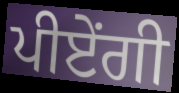
ਪੀਏਂਗੀ